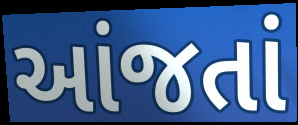
આંજતાં